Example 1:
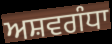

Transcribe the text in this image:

ਅਸ਼ਵਗੰਧਾ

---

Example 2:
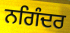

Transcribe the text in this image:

ਨਗਿੰਦਰ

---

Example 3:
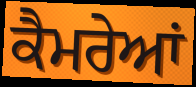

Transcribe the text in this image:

ਕੈਮਰੇਆਂ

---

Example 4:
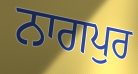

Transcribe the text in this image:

ਨਾਗਪੁਰ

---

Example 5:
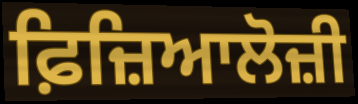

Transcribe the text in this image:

ਫ਼ਿਜ਼ਿਆਲੋਜ਼ੀ